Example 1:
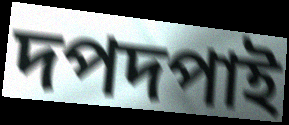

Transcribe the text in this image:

দপদপাই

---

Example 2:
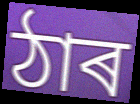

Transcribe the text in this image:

ঠাৰ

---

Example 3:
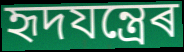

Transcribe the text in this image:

হৃদযন্ত্ৰেৰ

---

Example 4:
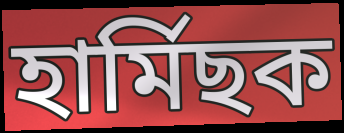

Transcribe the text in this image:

হাৰ্মিছক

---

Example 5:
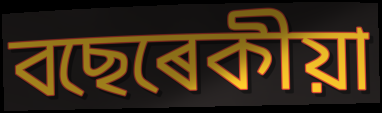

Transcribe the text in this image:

বছেৰেকীয়া